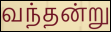
வந்தன்று